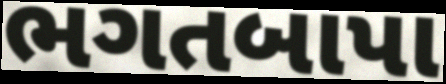
ભગતબાપા